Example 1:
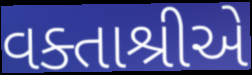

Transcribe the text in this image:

વક્તાશ્રીએ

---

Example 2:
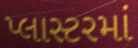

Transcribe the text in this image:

પ્લાસ્ટરમાં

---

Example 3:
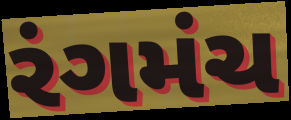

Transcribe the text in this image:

રંગમંચ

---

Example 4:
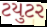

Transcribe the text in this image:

ટયુટર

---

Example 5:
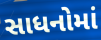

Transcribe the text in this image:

સાધનોમાં